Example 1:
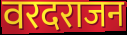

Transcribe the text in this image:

वरदराजन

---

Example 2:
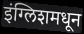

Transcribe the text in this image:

इंग्लिशमधून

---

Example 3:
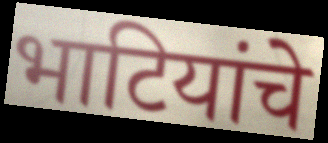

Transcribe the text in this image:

भाटियांचे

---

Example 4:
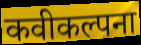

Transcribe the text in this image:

कवीकल्पना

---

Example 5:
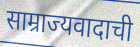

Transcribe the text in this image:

साम्राज्यवादाची